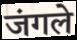
जंगले